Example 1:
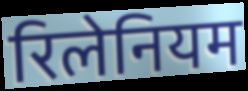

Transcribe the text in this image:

रिलेनियम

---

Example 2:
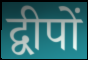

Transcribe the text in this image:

द्वीपों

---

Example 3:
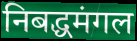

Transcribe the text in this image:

निबद्धमंगल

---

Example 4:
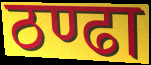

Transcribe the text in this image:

ठण्ढा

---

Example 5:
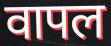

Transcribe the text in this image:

वापल